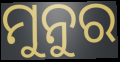
ମୁନୁର